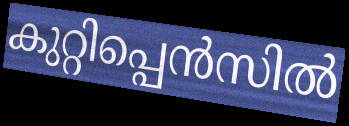
കുറ്റിപ്പെൻസിൽ